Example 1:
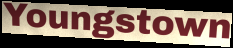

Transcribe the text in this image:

Youngstown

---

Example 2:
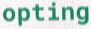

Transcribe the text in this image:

opting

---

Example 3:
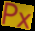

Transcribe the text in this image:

Px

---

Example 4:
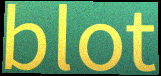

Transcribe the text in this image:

blot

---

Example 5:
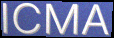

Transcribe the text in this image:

ICMA